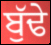
ਬੁੱਢੇ